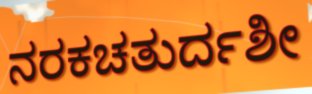
ನರಕಚತುರ್ದಶೀ